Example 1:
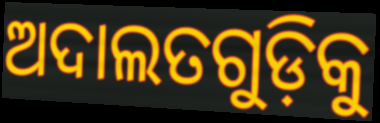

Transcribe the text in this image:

ଅଦାଲତଗୁଡ଼ିକୁ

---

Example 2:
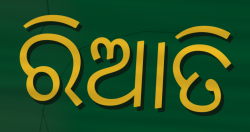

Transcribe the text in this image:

ରିଆତି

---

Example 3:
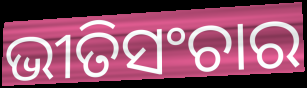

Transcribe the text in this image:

ଭୀତିସଂଚାର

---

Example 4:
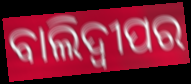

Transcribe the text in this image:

ବାଲିଦ୍ୱୀପର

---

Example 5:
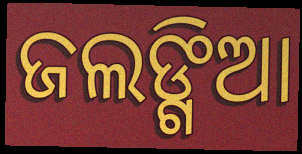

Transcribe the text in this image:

ଜଲଙ୍ଗିଆ